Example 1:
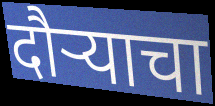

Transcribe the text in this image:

दौऱ्याचा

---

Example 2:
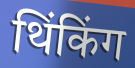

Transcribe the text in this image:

थिंकिंग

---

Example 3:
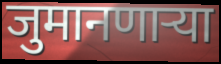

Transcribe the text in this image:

जुमानणार्‍या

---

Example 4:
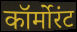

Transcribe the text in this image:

कॉर्मोरंट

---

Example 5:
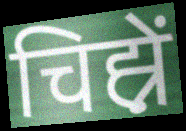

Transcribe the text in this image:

चिह्नें